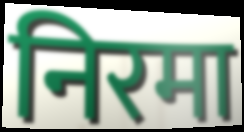
निरमा